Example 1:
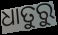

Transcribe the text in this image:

ଧାତୁରୁ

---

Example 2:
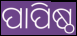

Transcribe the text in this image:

ପାପିଷ୍ଠ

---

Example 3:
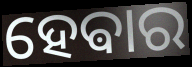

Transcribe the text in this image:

ହେଵାର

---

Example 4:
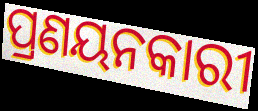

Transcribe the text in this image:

ପ୍ରଣୟନକାରୀ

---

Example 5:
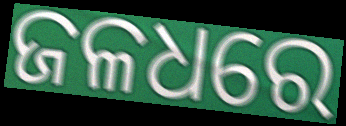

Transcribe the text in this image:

ଜଳଧରେ